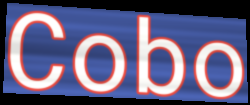
Cobo